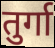
तुर्गा